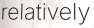
relatively